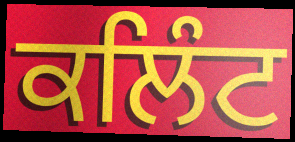
ਕਲਿੰਟ